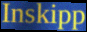
Inskipp